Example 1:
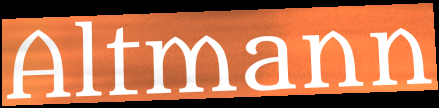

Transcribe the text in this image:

Altmann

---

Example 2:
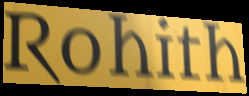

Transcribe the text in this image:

Rohith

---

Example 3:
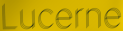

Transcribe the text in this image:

Lucerne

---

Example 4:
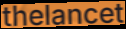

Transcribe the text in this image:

thelancet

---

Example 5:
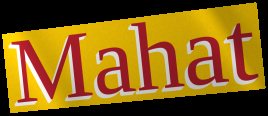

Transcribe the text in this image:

Mahat